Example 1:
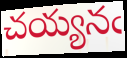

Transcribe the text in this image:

చయ్యనఁ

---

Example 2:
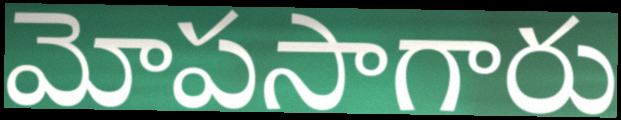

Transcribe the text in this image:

మోపసాగారు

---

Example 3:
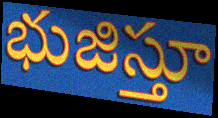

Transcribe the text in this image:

భుజిస్తూ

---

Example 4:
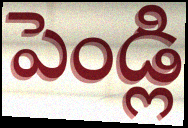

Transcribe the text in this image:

పెండ్లి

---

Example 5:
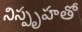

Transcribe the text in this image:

నిస్పృహతో